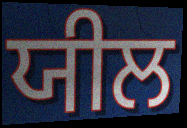
ਯੀਲ